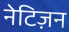
नेटिज़न